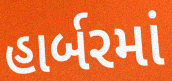
હાર્બરમાં